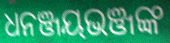
ଧନଞ୍ଜୟଭଞ୍ଜଙ୍କ